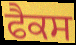
ਫੈਕਸ